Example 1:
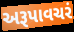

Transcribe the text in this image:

અરૂપાવચરં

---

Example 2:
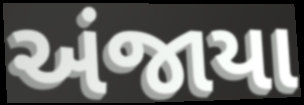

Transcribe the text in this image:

અંજાયા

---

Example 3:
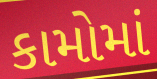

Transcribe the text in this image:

કામોમાં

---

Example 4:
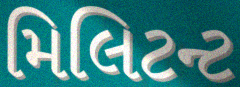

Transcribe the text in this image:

મિલિટન્ટ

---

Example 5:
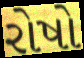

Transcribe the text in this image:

રોષો